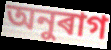
অনুৰাগ